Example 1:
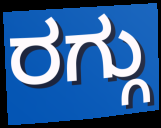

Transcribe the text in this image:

ರಗ್ಗು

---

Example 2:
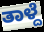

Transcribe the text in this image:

ತಾಳ್ದೆ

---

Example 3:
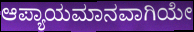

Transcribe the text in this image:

ಆಪ್ಯಾಯಮಾನವಾಗಿಯೇ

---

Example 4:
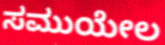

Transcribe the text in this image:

ಸಮುಯೇಲ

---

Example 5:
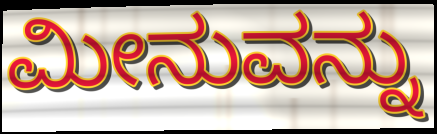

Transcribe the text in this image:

ಮೀನುವನ್ನು